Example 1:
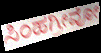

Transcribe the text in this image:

ಸಿಂಹಗ್ರೀವೋ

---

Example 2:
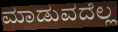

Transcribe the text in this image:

ಮಾಡುವದೆಲ್ಲ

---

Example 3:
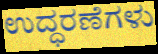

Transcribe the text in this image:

ಉದ್ಧರಣೆಗಳು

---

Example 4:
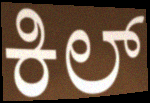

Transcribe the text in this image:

ಕಿಲ್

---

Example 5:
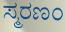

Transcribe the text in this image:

ಸ್ಮರಣಂ